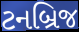
ટનબ્રિજ